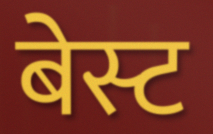
बेस्‍ट